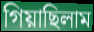
গিয়াছিলাম